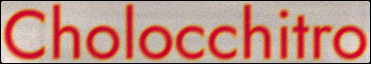
Cholocchitro